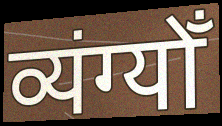
व्यंग्योँ